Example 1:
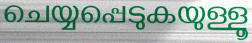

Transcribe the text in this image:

ചെയ്യപ്പെടുകയുള്ളൂ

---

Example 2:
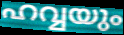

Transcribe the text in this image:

ഹവ്വയും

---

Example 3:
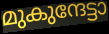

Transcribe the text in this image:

മുകുന്ദേട്ടാ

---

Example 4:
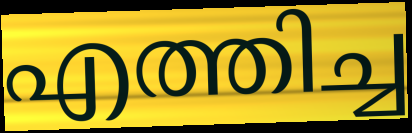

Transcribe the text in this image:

എത്തിച്ച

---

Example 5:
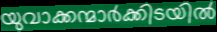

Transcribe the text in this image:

യുവാക്കന്മാർക്കിടയിൽ